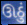
ઊઠું